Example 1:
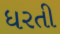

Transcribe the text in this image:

ધરતી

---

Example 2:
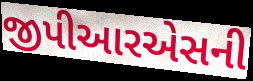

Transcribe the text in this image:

જીપીઆરએસની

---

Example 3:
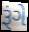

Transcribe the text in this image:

રૂંગે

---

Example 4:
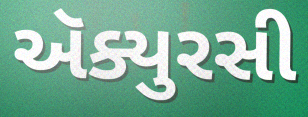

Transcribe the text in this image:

ઍક્યુરસી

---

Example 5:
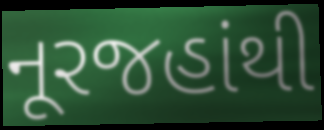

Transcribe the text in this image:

નૂરજહાંથી